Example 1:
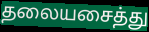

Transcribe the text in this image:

தலையசைத்து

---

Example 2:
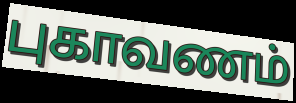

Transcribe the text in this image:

புகாவணம்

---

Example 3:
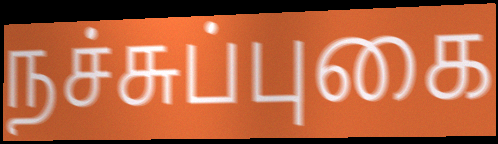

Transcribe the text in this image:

நச்சுப்புகை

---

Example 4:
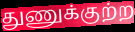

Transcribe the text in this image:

துணுக்குற்ற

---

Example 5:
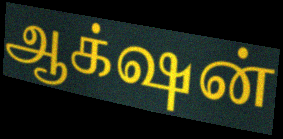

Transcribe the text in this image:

ஆக்‌ஷன்